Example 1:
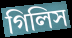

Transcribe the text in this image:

গিলিস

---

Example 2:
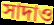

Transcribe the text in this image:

সাদাও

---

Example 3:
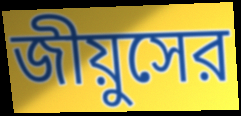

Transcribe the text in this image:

জীয়ুসের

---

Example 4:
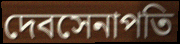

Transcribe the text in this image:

দেবসেনাপতি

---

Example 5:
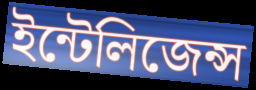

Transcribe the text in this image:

ইন্টেলিজেন্স